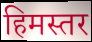
हिमस्तर